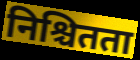
निश्चितता